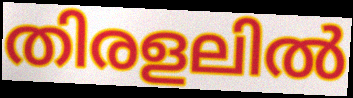
തിരളലിൽ